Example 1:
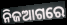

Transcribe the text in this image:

ନିଜଆଗରେ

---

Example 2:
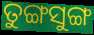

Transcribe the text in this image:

ତୁଙ୍ଗସୁଙ୍ଗ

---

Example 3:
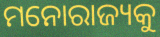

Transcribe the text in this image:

ମନୋରାଜ୍ୟକୁ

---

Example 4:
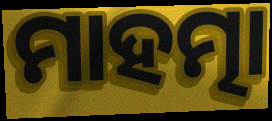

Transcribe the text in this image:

ମାହତ୍ମା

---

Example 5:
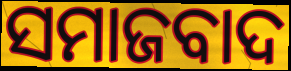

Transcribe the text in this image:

ସମାଜବାଦ